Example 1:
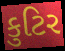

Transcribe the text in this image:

કુટિર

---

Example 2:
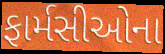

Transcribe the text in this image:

ફાર્મસીઓના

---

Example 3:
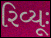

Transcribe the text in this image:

રિવ્યૂઃ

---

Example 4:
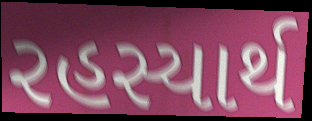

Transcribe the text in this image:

રહસ્યાર્થ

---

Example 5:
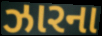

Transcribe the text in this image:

ઝારના